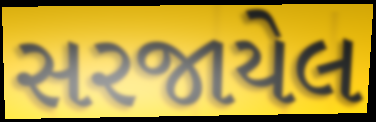
સરજાયેલ